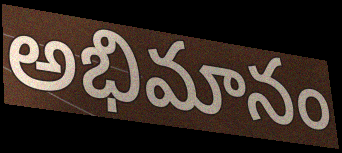
అభిమానం